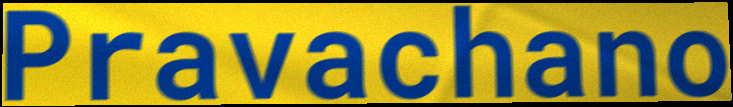
Pravachano